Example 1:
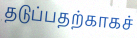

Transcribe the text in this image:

தடுப்பதற்காகச்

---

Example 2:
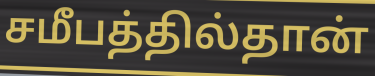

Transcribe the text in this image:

சமீபத்தில்தான்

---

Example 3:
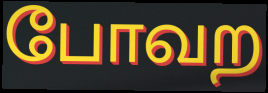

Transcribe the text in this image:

போவற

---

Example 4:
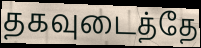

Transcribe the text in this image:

தகவுடைத்தே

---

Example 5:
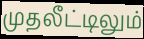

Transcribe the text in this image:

முதலீட்டிலும்